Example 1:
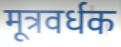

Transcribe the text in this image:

मूत्रवर्धक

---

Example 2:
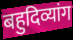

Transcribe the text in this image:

बहुदिव्यांग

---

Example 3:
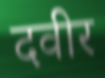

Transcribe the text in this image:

दवीर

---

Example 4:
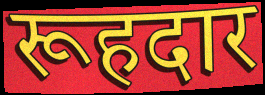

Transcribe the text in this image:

रूहदार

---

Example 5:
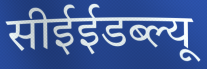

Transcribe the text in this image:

सीईईडब्ल्यू